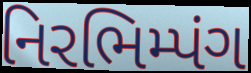
નિરભિમ્પંગ